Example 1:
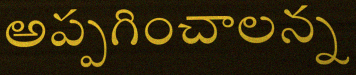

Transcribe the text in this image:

అప్పగించాలన్న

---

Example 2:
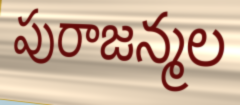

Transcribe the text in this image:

పురాజన్మల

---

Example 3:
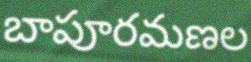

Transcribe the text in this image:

బాపూరమణల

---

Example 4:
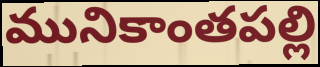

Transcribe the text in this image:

మునికాంతపల్లి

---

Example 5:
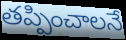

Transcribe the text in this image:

తప్పించాలనే